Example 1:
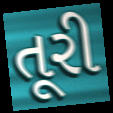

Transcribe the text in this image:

તૂરી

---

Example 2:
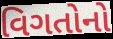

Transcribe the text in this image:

વિગતોનો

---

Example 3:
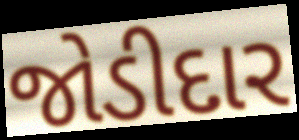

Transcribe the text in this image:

જોડીદાર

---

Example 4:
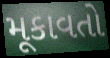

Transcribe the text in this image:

મૂકાવતો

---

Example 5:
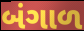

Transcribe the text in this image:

બંગાળ